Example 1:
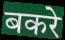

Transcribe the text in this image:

बकरे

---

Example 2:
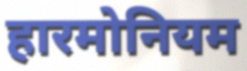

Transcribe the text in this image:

हारमोनियम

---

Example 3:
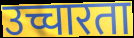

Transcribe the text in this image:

उच्चारता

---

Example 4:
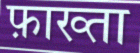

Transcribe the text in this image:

फ़ाख्ता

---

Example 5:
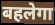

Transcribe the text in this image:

बहलेगा